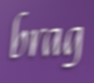
brag